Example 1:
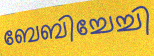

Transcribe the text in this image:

ബേബിച്ചേച്ചി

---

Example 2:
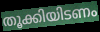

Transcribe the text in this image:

തൂക്കിയിടണം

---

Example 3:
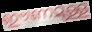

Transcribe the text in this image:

ഈണമുള്ള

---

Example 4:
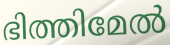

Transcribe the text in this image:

ഭിത്തിമേൽ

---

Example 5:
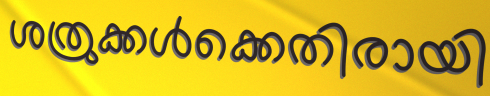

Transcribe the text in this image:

ശത്രുക്കൾക്കെതിരായി